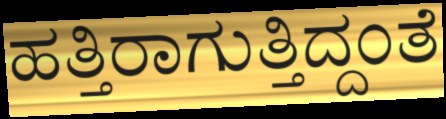
ಹತ್ತಿರಾಗುತ್ತಿದ್ದಂತೆ